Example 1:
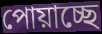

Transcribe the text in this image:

পোয়াচ্ছে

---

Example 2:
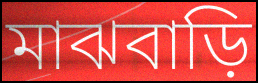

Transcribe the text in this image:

মাঝবাড়ি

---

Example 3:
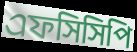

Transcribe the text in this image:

এফসিসিপি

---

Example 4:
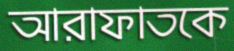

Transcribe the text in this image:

আরাফাতকে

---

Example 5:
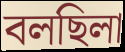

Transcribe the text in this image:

বলছিলা